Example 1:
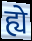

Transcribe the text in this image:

ह्ये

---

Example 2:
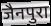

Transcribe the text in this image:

जैनपुरा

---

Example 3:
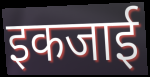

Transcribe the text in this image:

इकजाई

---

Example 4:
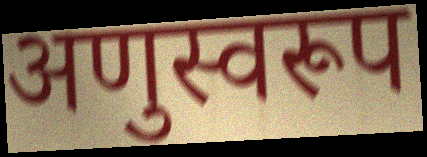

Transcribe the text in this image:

अणुस्वरूप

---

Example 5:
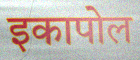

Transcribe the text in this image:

इकापोल